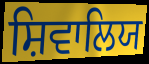
ਸ਼ਿਵਾਲਿਯ